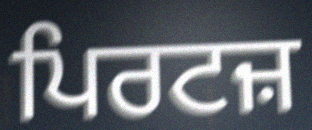
ਪਿਰਟਜ਼